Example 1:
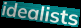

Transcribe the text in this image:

idealists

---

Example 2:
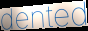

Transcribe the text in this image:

dented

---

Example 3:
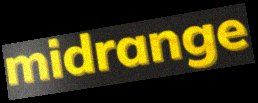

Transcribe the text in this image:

midrange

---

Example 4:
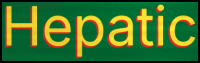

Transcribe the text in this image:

Hepatic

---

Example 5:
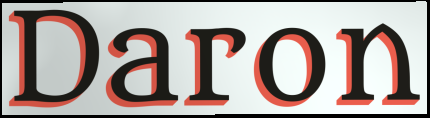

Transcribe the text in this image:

Daron